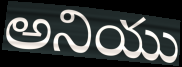
అనియు